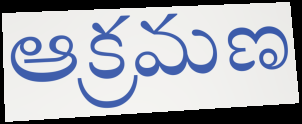
ఆక్రమణ